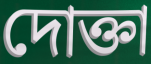
দোক্তা